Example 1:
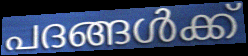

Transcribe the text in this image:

പദങ്ങൾക്ക്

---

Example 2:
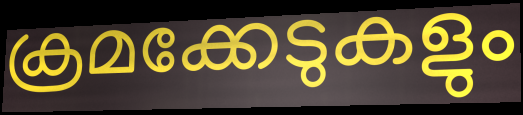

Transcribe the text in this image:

ക്രമക്കേടുകളും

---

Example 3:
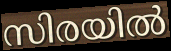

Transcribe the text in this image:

സിരയിൽ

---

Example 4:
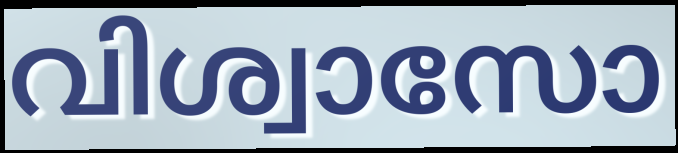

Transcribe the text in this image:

വിശ്വാസോ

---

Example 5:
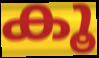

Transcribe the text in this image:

കൂ